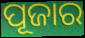
ପୂଜାର